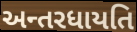
અન્તરધાયતિ